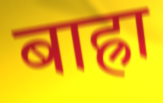
बाह्रा